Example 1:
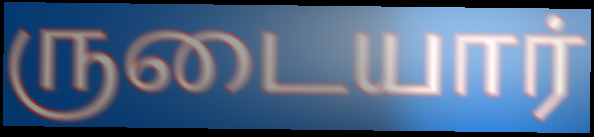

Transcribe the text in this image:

ருடையார்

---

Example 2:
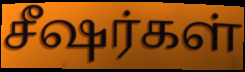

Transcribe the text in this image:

சீஷர்கள்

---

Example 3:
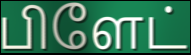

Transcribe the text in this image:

பிளேட்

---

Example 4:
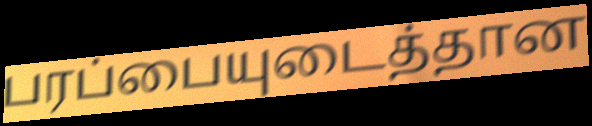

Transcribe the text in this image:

பரப்பையுடைத்தான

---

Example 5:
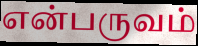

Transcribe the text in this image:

என்பருவம்